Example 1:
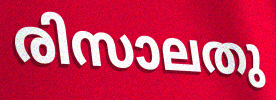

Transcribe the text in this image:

രിസാലതു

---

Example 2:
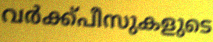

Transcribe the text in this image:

വർക്ക്പീസുകളുടെ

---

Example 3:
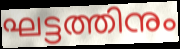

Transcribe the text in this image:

ഘട്ടത്തിനും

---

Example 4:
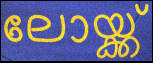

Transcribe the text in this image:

ലോയ്ക്ക്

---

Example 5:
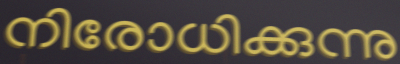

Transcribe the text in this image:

നിരോധിക്കുന്നു